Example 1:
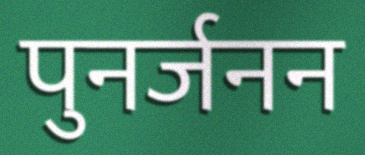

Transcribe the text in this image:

पुनर्जनन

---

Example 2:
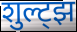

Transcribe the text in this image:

शुल्ट्झ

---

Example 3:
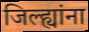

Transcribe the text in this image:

जिल्ह्यांना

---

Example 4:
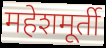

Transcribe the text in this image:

महेशमूर्ती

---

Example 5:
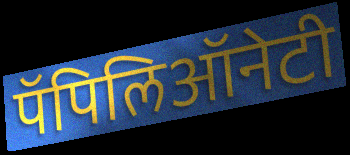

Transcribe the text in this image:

पॅपिलिऑनेटी